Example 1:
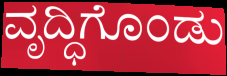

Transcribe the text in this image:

ವೃದ್ಧಿಗೊಂಡು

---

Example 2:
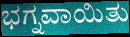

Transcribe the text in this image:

ಭಗ್ನವಾಯಿತು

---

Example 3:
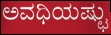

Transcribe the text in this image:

ಅವಧಿಯಷ್ಟು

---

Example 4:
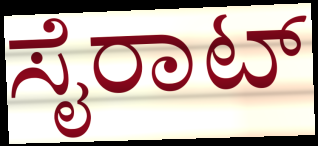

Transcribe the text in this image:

ಸೈರಾಟ್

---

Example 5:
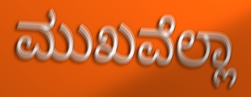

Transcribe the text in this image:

ಮುಖವೆಲ್ಲಾ